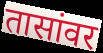
तासांवर